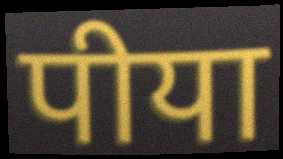
पीया